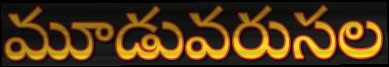
మూడువరుసల